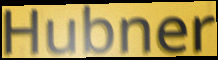
Hubner